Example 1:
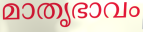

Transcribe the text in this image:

മാതൃഭാവം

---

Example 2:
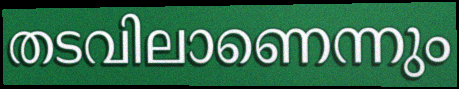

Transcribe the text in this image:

തടവിലാണെന്നും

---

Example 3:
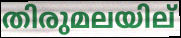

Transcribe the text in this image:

തിരുമലയില്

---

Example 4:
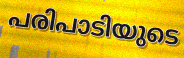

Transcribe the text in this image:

പരിപാടിയുടെ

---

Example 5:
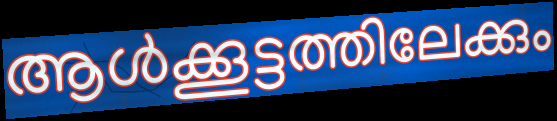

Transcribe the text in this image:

ആൾക്കൂട്ടത്തിലേക്കും